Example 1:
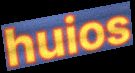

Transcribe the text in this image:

huios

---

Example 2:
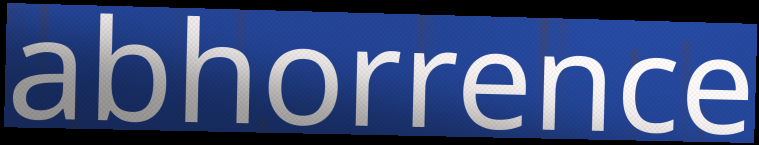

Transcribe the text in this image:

abhorrence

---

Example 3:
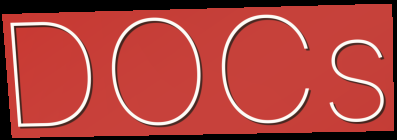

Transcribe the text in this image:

DOCs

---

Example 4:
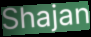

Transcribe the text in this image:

Shajan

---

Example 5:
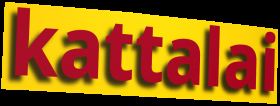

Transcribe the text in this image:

kattalai